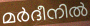
മർദീനിൽ